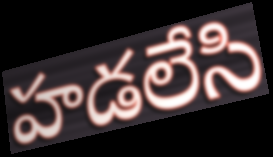
హడలేసి